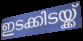
ഇടക്കിടയ്ക്ക്